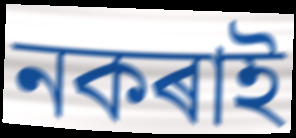
নকৰাই